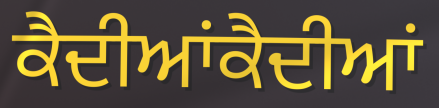
ਕੈਦੀਆਂਕੈਦੀਆਂ